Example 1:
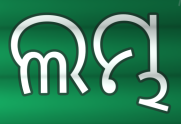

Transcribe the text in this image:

ଲମ୍ଭ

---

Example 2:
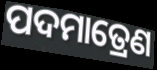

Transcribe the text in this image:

ପଦମାତ୍ରେଣ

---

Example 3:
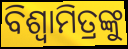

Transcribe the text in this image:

ବିଶ୍ଵାମିତ୍ରଙ୍କୁ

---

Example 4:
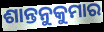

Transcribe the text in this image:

ଶାନ୍ତନୁକୁମାର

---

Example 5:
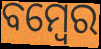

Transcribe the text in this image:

ବମ୍ବେର